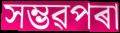
সম্ভৱপৰা